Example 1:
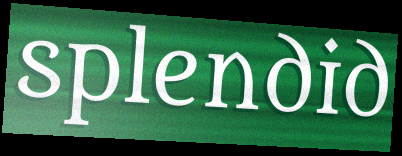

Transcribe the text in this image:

splendid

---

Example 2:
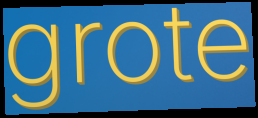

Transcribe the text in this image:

grote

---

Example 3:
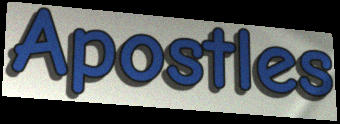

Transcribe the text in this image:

Apostles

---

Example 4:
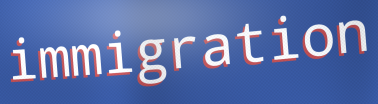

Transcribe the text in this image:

immigration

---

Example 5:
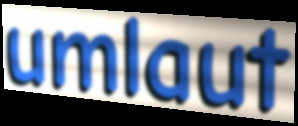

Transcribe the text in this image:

umlaut